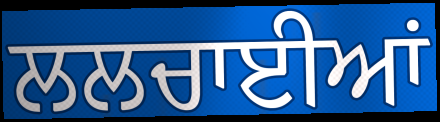
ਲਲਚਾਈਆਂ